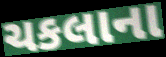
ચકલાના